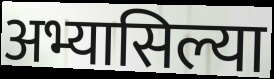
अभ्यासिल्या